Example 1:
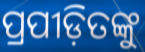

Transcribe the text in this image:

ପ୍ରପୀଡ଼ିତଙ୍କୁ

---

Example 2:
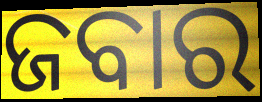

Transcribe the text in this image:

ଜବାର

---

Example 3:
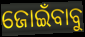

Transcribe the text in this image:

ଜୋଇଁବାବୁ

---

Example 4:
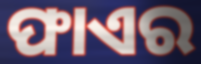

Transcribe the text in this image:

ଫାଏର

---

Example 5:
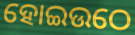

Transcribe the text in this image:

ହୋଇଉଠେ